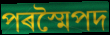
পৰস্মৈপদ